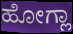
ಹೋಗ್ಲಾ